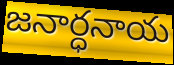
జనార్ధనాయ